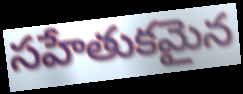
సహేతుకమైన